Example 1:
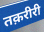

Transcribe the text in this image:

तक़रीरी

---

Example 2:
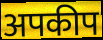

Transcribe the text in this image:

अपकीप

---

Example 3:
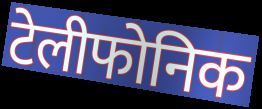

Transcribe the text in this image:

टेलीफोनिक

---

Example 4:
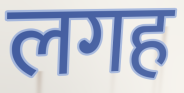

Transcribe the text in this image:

लगह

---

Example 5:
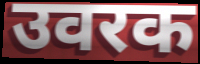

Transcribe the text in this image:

उवरक